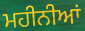
ਮਹੀਨੀਆਂ